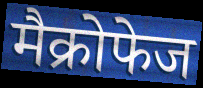
मैक्रोफेज